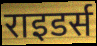
राइडर्स